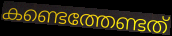
കണ്ടെത്തേണ്ടത്